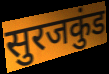
सुरजकुंड